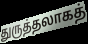
துருத்தலாகத்